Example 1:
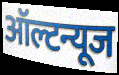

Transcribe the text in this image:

ऑल्टन्यूज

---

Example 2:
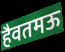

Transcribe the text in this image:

हैवतमऊ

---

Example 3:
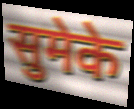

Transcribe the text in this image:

सुमेके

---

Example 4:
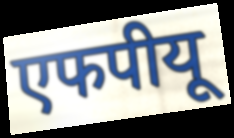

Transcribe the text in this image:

एफपीयू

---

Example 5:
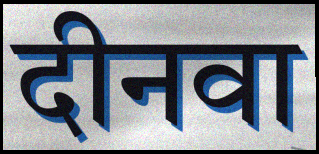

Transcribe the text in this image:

दीनवा